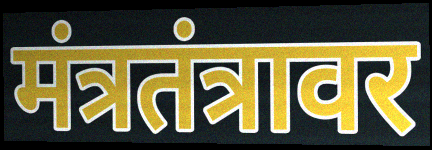
मंत्रतंत्रावर